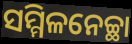
ସମ୍ମିଳନେଚ୍ଛା